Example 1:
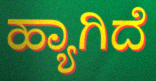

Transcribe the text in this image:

ಹ್ಯಾಗಿದೆ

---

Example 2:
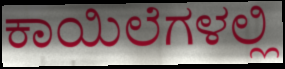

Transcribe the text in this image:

ಕಾಯಿಲೆಗಳಲ್ಲಿ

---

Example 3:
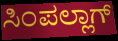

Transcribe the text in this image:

ಸಿಂಪಲ್ಲಾಗ್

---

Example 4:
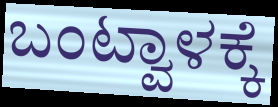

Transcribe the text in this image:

ಬಂಟ್ವಾಳಕ್ಕೆ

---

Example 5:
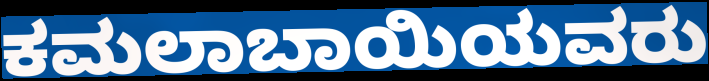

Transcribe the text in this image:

ಕಮಲಾಬಾಯಿಯವರು